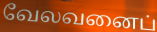
வேலவனைப்